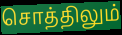
சொத்திலும்